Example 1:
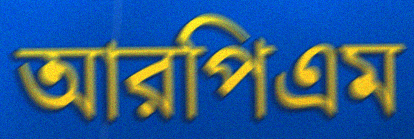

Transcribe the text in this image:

আরপিএম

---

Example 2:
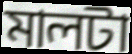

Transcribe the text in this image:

মালটা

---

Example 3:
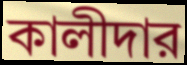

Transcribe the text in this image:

কালীদার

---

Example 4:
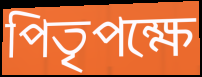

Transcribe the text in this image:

পিতৃপক্ষে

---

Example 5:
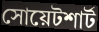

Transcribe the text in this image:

সোয়েটশার্ট